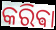
କରିଵା